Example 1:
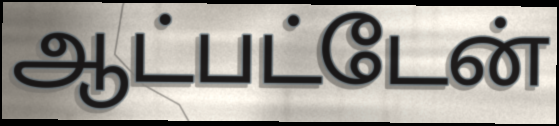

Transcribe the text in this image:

ஆட்பட்டேன்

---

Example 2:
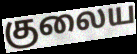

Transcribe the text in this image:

குலைய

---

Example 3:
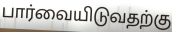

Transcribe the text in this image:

பார்வையிடுவதற்கு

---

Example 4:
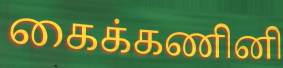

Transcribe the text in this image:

கைக்கணினி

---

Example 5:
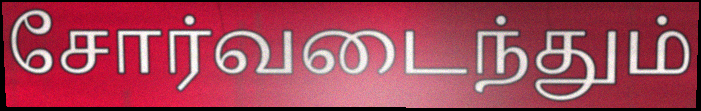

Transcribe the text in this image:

சோர்வடைந்தும்